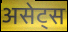
असेट्स